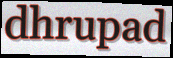
dhrupad